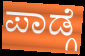
ಪಾಡ್ಗೆ